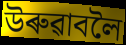
উৰুৱাবলৈ